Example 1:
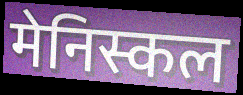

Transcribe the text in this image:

मेनिस्कल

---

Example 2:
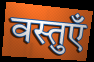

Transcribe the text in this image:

वस्‍तुएँ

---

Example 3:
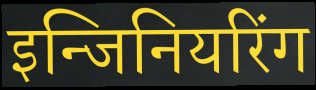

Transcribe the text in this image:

इन्जिनियरिंग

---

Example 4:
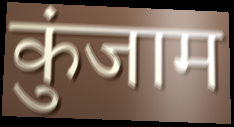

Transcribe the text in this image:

कुंजाम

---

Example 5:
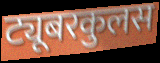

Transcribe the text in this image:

ट्यूबरकुलस